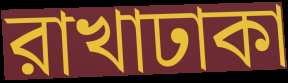
রাখাঢাকা